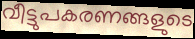
വീട്ടുപകരണങ്ങളുടെ